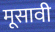
मूसावी